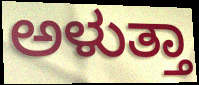
ಅಳುತ್ತಾ